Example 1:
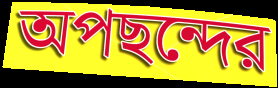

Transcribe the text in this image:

অপছন্দের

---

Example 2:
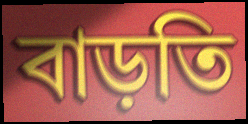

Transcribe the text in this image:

বাড়তি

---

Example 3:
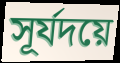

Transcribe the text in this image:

সূর্যদয়ে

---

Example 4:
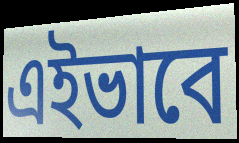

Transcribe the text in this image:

এইভাবে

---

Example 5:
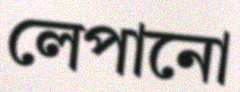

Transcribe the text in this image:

লেপানো